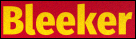
Bleeker